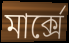
মাৰ্ক্সে